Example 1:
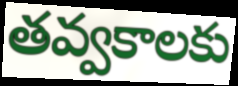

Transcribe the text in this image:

తవ్వకాలకు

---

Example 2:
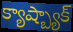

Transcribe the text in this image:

క్యాష్బ్యాక్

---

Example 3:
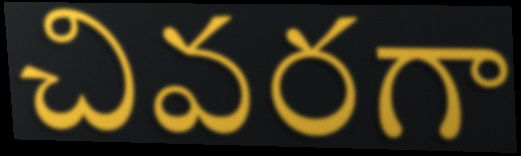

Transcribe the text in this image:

చివరగా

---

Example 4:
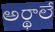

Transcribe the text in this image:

అర్థాలే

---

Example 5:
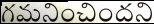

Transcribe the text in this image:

గమనించిందని